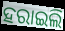
ହରାଇଲି